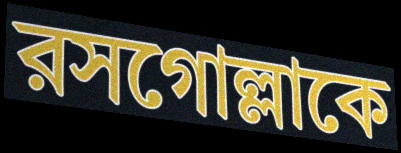
রসগোল্লাকে